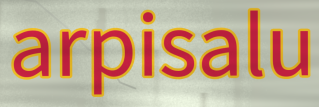
arpisalu